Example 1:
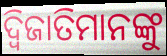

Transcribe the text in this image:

ଦ୍ୱିଜାତିମାନଙ୍କୁ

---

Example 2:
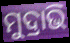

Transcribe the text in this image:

ମୁଦ୍ରାଭି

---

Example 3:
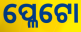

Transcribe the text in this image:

ପ୍ଳେଟୋ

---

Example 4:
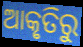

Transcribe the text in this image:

ଆକୃତିରୁ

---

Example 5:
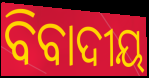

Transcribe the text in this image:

ବିବାଦୀୟ